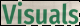
Visuals